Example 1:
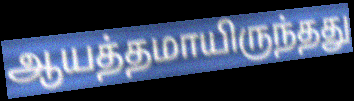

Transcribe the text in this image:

ஆயத்தமாயிருந்தது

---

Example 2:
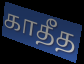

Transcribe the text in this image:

காதீத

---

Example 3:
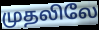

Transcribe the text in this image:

முதலிலே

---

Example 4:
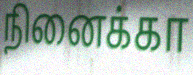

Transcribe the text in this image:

நினைக்கா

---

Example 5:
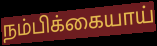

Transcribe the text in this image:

நம்பிக்கையாய்